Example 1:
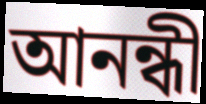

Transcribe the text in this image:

আনন্ধী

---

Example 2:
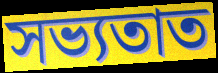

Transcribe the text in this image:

সভ্যতাত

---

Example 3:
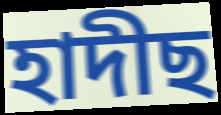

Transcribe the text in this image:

হাদীছ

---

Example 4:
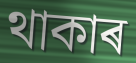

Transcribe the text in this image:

থাকাৰ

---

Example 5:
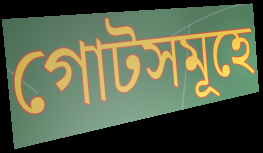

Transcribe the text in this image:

গোটসমূহে